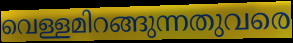
വെള്ളമിറങ്ങുന്നതുവരെ